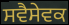
ਸਵੈਸੇਵਕ